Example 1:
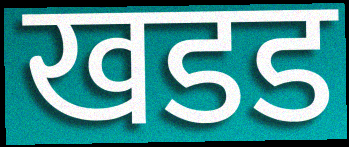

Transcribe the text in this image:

खडड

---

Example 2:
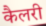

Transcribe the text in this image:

कैलरी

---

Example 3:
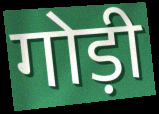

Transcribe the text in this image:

गोड़ी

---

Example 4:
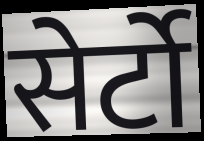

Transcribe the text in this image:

सेर्टो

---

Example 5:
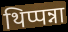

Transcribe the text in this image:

थिप्पन्ना